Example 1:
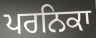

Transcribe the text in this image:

ਪਰਨਿਕਾ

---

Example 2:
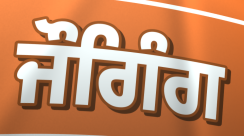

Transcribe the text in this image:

ਜੌਗਿੰਗ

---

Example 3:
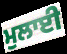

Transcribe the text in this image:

ਮੁਲਾਈ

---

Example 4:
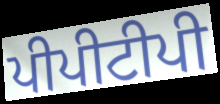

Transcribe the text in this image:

ਪੀਪੀਟੀਪੀ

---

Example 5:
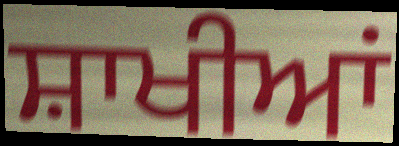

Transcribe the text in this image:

ਸ਼ਾਖੀਆਂ